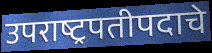
उपराष्ट्रपतीपदाचे